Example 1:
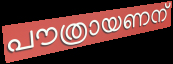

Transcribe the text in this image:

പൗത്രായണന്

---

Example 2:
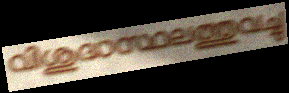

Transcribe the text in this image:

വിശുദ്ധസ്ഥലത്തുവച്ചു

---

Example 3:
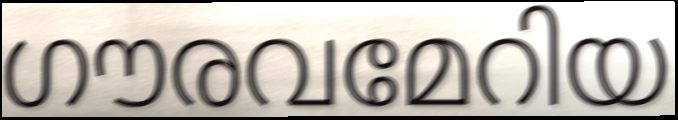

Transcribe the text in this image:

ഗൗരവമേറിയ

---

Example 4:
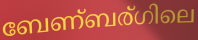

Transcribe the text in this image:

ബേണ്ബര്ഗിലെ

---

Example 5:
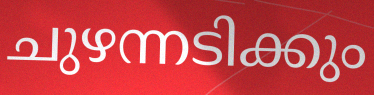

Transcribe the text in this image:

ചുഴന്നടിക്കും